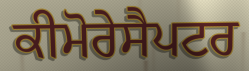
ਕੀਮੋਰੇਸੈਪਟਰ